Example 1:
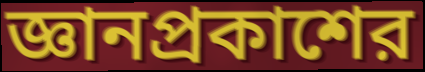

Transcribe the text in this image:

জ্ঞানপ্রকাশের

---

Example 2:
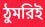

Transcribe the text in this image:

ঠুমরিই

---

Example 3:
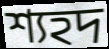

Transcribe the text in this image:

শ্যহদ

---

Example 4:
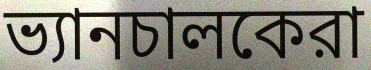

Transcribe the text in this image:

ভ্যানচালকেরা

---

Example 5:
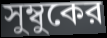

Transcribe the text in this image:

সুম্বুকের